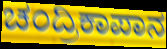
ಚಂದ್ರಿಕಾಪಾನ